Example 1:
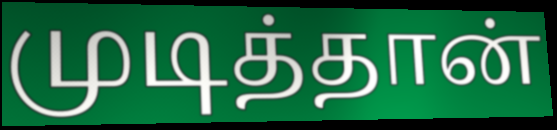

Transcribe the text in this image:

முடித்தான்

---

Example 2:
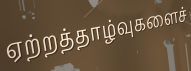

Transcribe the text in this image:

ஏற்றத்தாழ்வுகளைச்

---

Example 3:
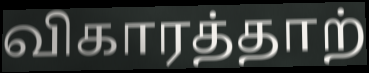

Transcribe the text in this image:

விகாரத்தாற்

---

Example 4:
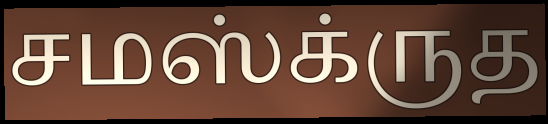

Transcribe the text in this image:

சமஸ்க்ருத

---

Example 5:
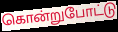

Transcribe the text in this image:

கொன்றுபோட்டு